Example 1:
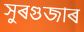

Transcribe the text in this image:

সুৰগুজাৰ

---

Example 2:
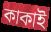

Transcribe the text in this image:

কাকাই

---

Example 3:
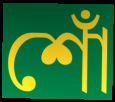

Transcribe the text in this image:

শোঁ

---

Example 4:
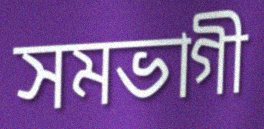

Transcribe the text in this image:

সমভাগী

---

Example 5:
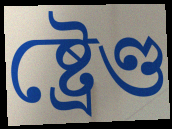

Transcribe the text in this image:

ষ্ট্ৰেণ্ড